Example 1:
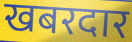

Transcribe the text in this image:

खबरदार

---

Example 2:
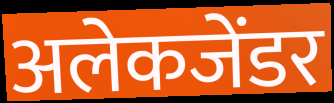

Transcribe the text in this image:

अलेकजेंडर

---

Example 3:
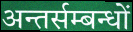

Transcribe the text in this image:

अन्तर्सम्बन्धों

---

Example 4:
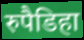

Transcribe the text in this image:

रुपैडिहा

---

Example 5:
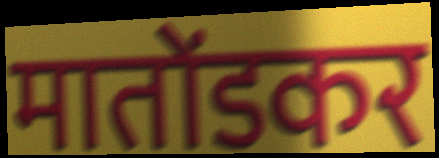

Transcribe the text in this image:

मातोंडकर